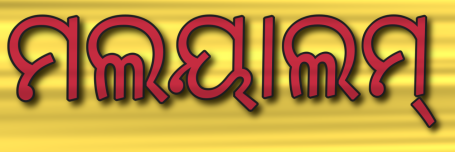
ମଲୟାଲମ୍